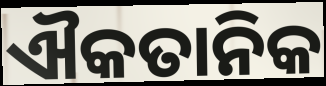
ଐକତାନିକ